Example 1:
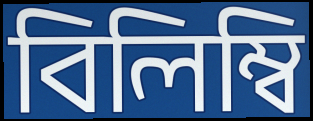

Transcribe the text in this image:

বিলিম্বি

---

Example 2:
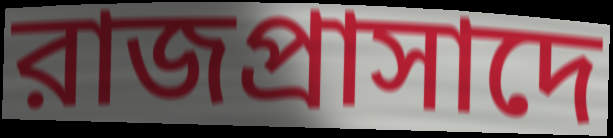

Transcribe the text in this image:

রাজপ্রাসাদে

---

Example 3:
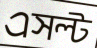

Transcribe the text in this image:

এসল্ট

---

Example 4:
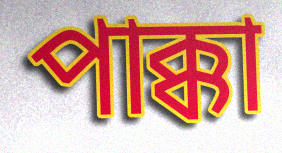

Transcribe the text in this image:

পাক্কা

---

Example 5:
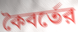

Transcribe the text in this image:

কৈবর্তের